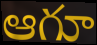
ఆగూ